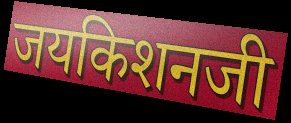
जयकिशनजी